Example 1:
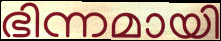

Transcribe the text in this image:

ഭിന്നമായി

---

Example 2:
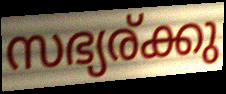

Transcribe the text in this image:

സഭ്യര്ക്കു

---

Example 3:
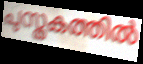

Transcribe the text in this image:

പുസ്തകത്തിൽ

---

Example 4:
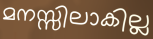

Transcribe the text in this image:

മനസ്സിലാകില്ല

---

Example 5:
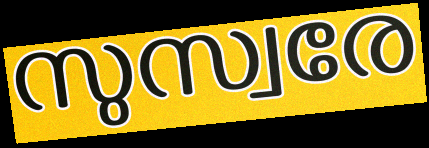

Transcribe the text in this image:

സുസ്വരേ